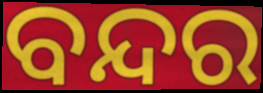
ବନ୍ଦର